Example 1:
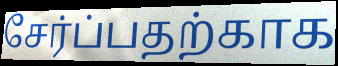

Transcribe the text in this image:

சேர்ப்பதற்காக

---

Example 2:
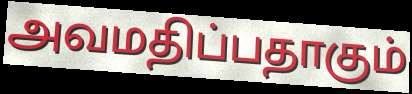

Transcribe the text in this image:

அவமதிப்பதாகும்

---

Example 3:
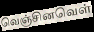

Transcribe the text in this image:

வெஞ்சினவெள்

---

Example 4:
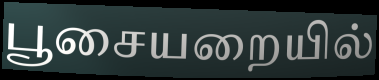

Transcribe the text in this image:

பூசையறையில்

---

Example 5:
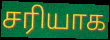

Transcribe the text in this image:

சரியாக